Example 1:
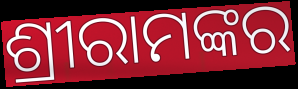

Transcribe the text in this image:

ଶ୍ରୀରାମଙ୍କର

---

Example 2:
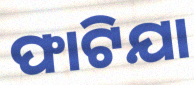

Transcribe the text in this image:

ଫାଟିଯା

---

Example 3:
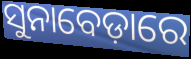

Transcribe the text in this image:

ସୁନାବେଡ଼ାରେ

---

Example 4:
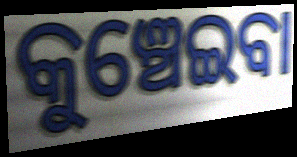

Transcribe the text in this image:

କୁଞ୍ଚେଇବା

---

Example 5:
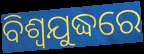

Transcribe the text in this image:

ବିଶ୍ଵଯୁଦ୍ଧରେ